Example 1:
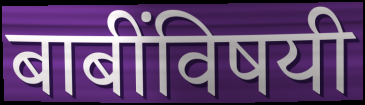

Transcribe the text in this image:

बाबींविषयी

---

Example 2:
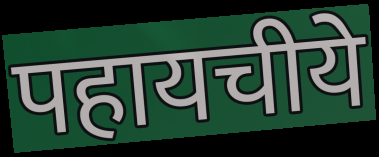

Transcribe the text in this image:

पहायचीये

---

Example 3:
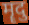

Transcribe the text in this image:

मॄदु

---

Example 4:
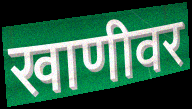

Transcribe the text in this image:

खाणीवर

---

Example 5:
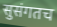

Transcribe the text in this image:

सुसंगतच